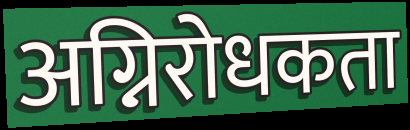
अग्निरोधकता